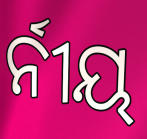
ର୍ନୀୟ